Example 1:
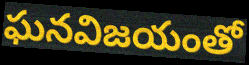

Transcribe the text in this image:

ఘనవిజయంతో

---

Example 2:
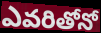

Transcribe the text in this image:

ఎవరితోనో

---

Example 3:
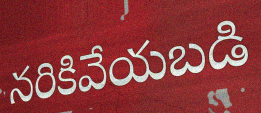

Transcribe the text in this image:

నరికివేయబడి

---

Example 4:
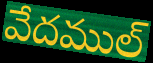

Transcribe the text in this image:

వేదముల్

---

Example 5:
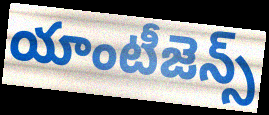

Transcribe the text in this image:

యాంటీజెన్స్